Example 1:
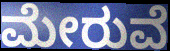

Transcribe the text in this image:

ಮೇರುವೆ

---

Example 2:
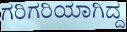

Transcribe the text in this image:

ಗರಿಗರಿಯಾಗಿದ್ದ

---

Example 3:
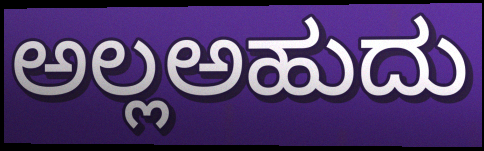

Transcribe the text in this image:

ಅಲ್ಲಅಹುದು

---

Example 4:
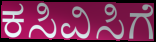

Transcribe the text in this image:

ಕಸಿವಿಸಿಗೆ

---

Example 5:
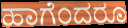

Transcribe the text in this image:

ಹಾಗೆಂದರೂ